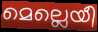
മെല്ലെയീ